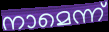
നാമെന്ന്